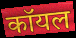
कॉयल